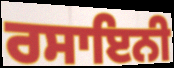
ਰਸਾਇਨੀ